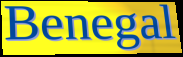
Benegal